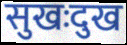
सुखःदुख